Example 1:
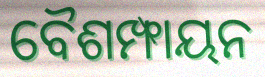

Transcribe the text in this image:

ବୈଶମ୍ଫାୟନ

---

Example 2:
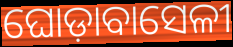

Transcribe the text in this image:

ଘୋଡ଼ାବାସେଳୀ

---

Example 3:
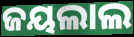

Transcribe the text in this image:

ଜୟଲାଲ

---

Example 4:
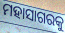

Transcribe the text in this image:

ମହାସାଗରକୁ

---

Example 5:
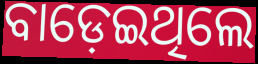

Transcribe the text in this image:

ବାଡ଼େଇଥିଲେ